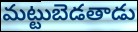
మట్టుబెడతాడు